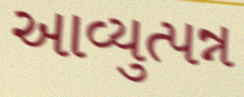
આવ્યુત્પન્ન